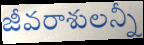
జీవరాశులన్నీ